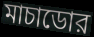
মাচাডোর